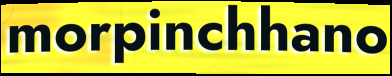
morpinchhano